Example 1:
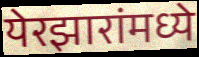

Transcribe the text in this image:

येरझारांमध्ये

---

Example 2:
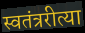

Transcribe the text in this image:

स्वतंत्ररीत्या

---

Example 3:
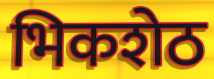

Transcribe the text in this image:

भिकशेठ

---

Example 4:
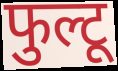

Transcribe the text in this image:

फुल्टू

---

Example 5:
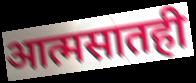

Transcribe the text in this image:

आत्मसातही